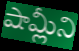
షామ్లీని